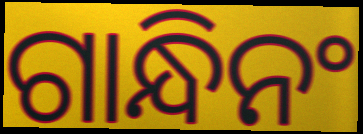
ଗାନ୍ଧିନଂ